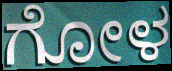
ಗೋಳ